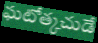
ఘటోత్కచుడే